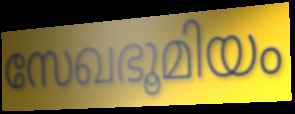
സേഖഭൂമിയം